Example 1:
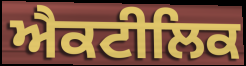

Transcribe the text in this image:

ਐਕਟੀਲਿਕ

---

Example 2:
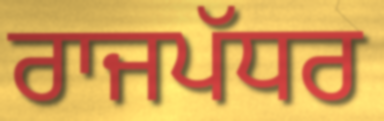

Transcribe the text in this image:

ਰਾਜਪੱਧਰ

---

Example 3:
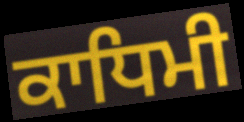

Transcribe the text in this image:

ਕਾਧਿਮੀ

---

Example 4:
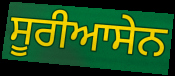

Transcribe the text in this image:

ਸੂਰੀਆਸੇਨ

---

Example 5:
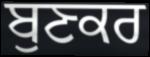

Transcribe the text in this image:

ਬੁਣਕਰ